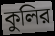
কুলির